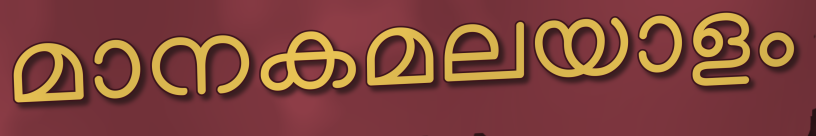
മാനകമലയാളം